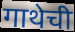
गाथेची